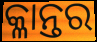
କ୍ଳାନ୍ତର